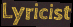
Lyricist